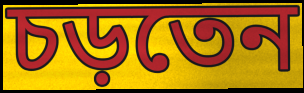
চড়তেন